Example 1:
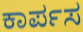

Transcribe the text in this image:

ಕಾರ್ಪಸ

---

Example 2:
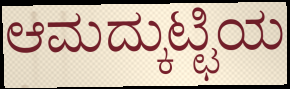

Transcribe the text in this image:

ಆಮದ್ಕುಟ್ಟಿಯ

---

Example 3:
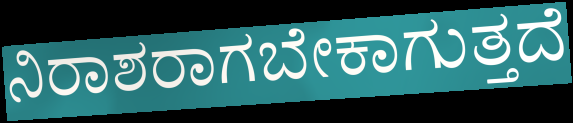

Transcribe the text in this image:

ನಿರಾಶರಾಗಬೇಕಾಗುತ್ತದೆ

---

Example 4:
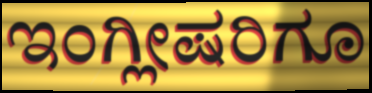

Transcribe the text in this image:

ಇಂಗ್ಲೀಷರಿಗೂ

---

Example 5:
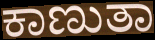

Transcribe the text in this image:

ಕಾಣುತಾ